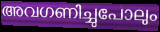
അവഗണിച്ചുപോലും